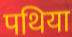
पथिया